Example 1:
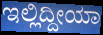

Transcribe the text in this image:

ಇಲ್ಲಿದ್ದೀಯಾ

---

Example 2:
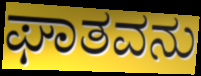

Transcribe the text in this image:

ಘಾತವನು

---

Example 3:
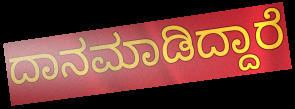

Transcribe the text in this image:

ದಾನಮಾಡಿದ್ದಾರೆ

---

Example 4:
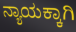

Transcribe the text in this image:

ನ್ಯಾಯಕ್ಕಾಗಿ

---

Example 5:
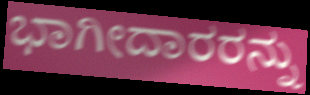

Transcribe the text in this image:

ಭಾಗೀದಾರರನ್ನು